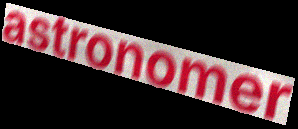
astronomer